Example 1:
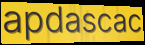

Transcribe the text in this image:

apdascac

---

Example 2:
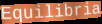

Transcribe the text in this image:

Equilibria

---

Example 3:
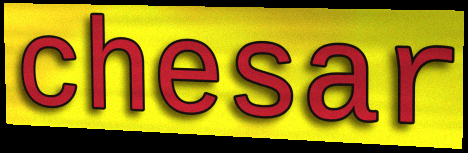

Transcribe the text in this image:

chesar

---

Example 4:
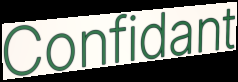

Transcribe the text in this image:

Confidant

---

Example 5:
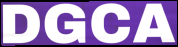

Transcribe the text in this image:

DGCA